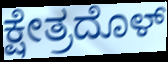
ಕ್ಷೇತ್ರದೊಳ್